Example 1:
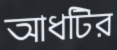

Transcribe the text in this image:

আধটির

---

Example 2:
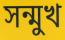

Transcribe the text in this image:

সন্মুখ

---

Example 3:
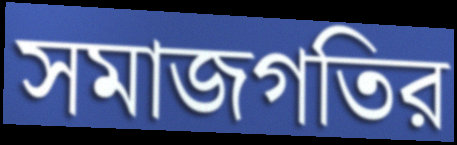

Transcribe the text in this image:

সমাজগতির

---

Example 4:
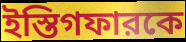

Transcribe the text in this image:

ইস্তিগফারকে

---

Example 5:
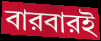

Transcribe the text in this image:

বারবারই